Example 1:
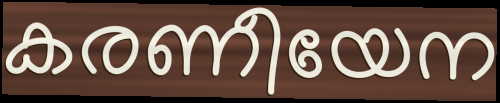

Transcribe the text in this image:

കരണീയേന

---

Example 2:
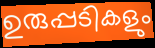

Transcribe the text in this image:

ഉരുപ്പടികളും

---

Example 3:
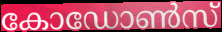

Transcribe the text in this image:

കോഡോൺസ്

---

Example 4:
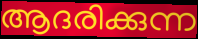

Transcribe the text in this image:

ആദരിക്കുന്ന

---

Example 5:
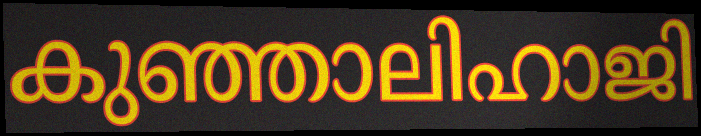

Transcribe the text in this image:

കുഞ്ഞാലിഹാജി